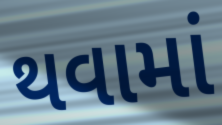
થવામાં